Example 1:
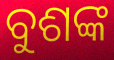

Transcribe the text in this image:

ବୁଶଙ୍କ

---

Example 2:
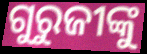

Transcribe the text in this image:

ଗୁରୁଜୀଙ୍କୁ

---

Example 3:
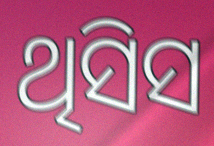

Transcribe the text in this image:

ଥିସିସ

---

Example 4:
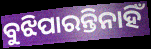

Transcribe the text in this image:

ବୁଝିପାରନ୍ତିନାହିଁ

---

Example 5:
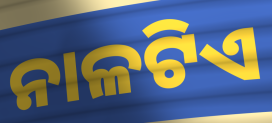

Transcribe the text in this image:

ନାଳଟିଏ